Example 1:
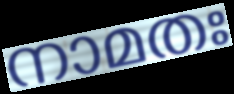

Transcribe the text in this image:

നാമതഃ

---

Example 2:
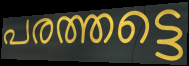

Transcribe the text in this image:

പരത്തട്ടെ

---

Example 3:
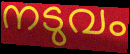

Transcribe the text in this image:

നടുവം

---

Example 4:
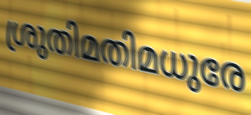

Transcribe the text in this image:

ശ്രുതിമതിമധുരേ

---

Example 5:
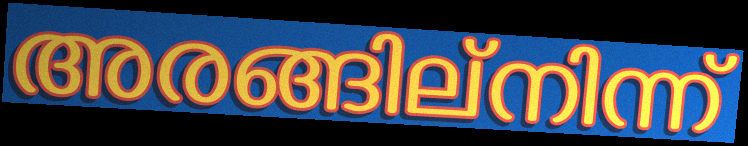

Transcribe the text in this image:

അരങ്ങില്നിന്ന്